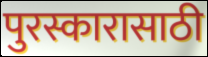
पुरस्कारासाठी